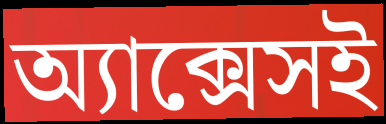
অ্যাক্সেসই